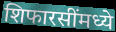
शिफारसींमध्ये